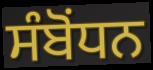
ਸੰਬੋੰਧਨ